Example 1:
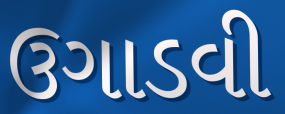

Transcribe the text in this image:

ઉગાડવી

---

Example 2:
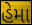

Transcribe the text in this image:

હેમા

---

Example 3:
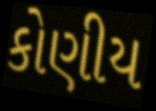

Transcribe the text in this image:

કોણીય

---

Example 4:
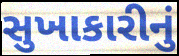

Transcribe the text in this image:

સુખાકારીનું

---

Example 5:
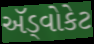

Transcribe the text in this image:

ઍડ્વોકેટ